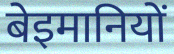
बेइमानियों